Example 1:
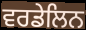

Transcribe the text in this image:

ਵਰਡੇਲਿਨ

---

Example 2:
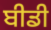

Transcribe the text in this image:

ਬੀਡੀ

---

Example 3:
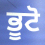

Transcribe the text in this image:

ਭੂਟੋ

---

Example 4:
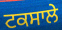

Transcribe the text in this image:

ਟਕਸਾਲੇ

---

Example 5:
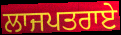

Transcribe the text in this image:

ਲਾਜਪਤਰਾਏ